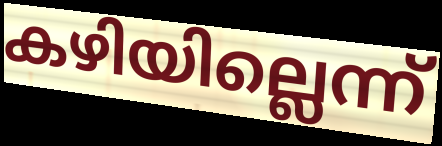
കഴിയില്ലെന്ന്